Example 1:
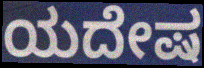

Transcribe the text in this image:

ಯದೇಷ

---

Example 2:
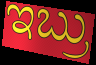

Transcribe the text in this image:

ಇಬ್ರು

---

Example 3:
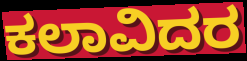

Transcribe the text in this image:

ಕಲಾವಿದರ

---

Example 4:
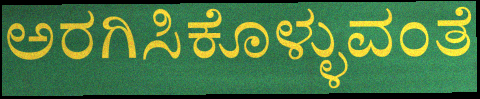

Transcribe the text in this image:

ಅರಗಿಸಿಕೊಳ್ಳುವಂತೆ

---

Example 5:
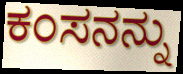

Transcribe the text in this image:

ಕಂಸನನ್ನು